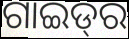
ଗାଇଡ୍‌ର